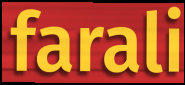
farali